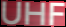
UHF